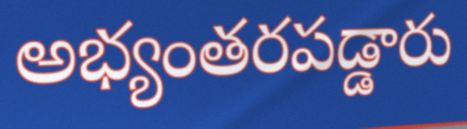
అభ్యంతరపడ్డారు